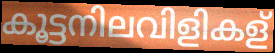
കൂട്ടനിലവിളികള്